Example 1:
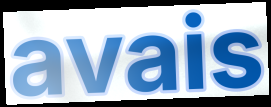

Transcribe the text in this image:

avais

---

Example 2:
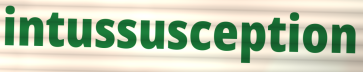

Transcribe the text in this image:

intussusception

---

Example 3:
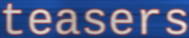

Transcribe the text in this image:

teasers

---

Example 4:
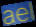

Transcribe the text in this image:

ael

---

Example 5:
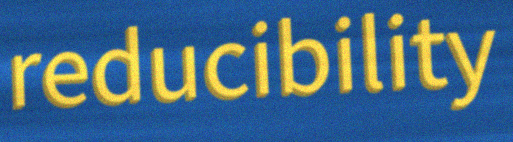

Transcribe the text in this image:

reducibility